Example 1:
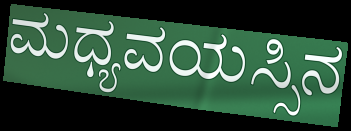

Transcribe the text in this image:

ಮಧ್ಯವಯಸ್ಸಿನ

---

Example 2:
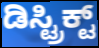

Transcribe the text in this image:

ಡಿಸ್ಟ್ರಿಕ್ಟ್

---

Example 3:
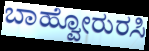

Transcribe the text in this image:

ಬಾಹ್ವೋರುರಸಿ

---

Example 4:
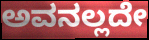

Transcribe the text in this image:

ಅವನಲ್ಲದೇ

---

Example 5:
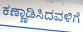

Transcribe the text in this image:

ಕಣ್ಣಾಡಿಸಿದವಳಿಗೆ